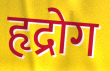
हृद्रोग